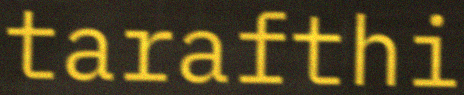
tarafthi